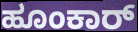
ಹೂಂಕಾರ್